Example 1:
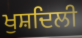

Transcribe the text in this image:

ਖੁਸ਼ਦਿਲੀ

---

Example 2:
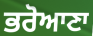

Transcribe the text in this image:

ਭਰੋਆਣਾ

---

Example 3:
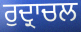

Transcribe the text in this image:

ਰੁਦ੍ਰਾਚਲ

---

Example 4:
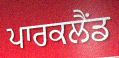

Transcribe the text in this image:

ਪਾਰਕਲੈਂਡ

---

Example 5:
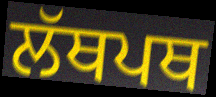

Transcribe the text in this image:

ਲੱਥਪਥ